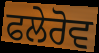
ਫਲੇਰੋਵ